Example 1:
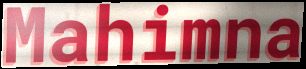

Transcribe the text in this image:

Mahimna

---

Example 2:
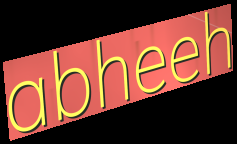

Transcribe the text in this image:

abheeh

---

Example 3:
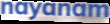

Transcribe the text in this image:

nayanam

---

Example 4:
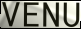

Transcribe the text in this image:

VENU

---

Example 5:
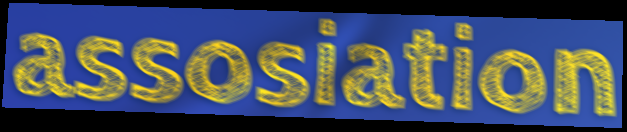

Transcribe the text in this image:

assosiation